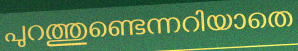
പുറത്തുണ്ടെന്നറിയാതെ